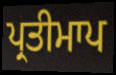
ਪ੍ਰਤੀਮਾਪ